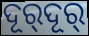
ଦୂର୍‌ଦୂର୍